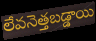
లేవనెత్తబడ్డాయి